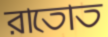
রাতোত